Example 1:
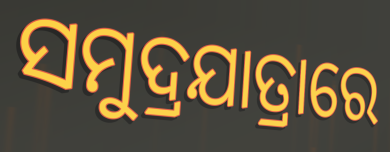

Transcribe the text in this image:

ସମୁଦ୍ରଯାତ୍ରାରେ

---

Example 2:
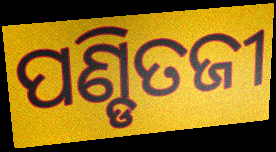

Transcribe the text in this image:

ପଣ୍ଡିତଜୀ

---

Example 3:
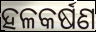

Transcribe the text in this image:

ହଳକର୍ଷଣ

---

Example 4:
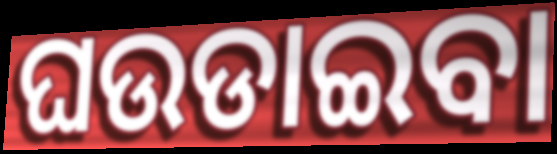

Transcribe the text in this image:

ଘଉଡାଇବା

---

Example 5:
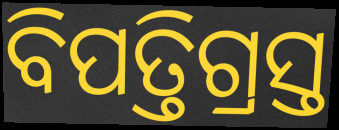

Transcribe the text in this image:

ବିପତ୍ତିଗ୍ରସ୍ତ